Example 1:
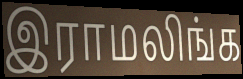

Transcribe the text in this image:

இராமலிங்க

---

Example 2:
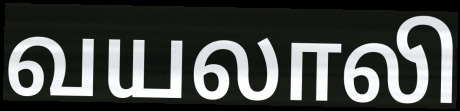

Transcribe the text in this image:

வயலாலி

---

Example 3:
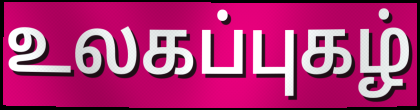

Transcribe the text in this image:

உலகப்புகழ்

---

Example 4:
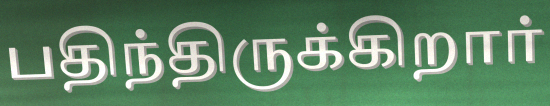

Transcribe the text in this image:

பதிந்திருக்கிறார்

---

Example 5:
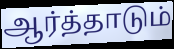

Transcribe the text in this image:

ஆர்த்தாடும்